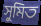
সুমিত